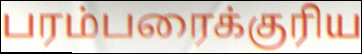
பரம்பரைக்குரிய